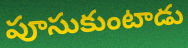
పూసుకుంటాడు